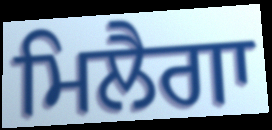
ਮਿਲੈਗਾ